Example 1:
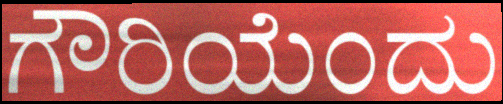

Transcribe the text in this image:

ಗೌರಿಯೆಂದು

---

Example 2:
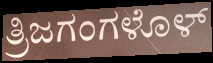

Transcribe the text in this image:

ತ್ರಿಜಗಂಗಳೊಳ್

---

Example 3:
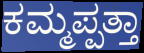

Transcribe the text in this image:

ಕಮ್ಮಪ್ಪತ್ತಾ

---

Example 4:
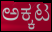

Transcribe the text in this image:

ಅಕ್ಕಟ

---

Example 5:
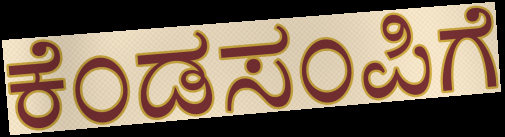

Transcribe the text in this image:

ಕೆಂಡಸಂಪಿಗೆ